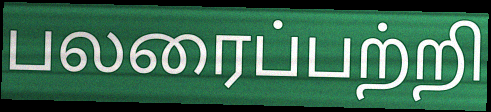
பலரைப்பற்றி